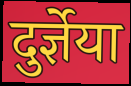
दुर्ज्ञेया